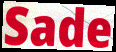
Sade